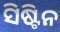
ସିଷ୍ଟିନ